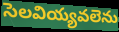
సెలవియ్యవలెను